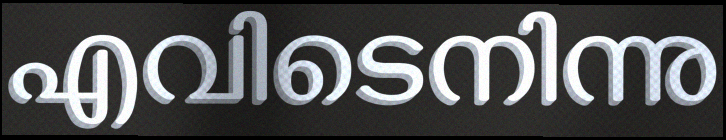
എവിടെനിന്നു